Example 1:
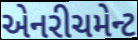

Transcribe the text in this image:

એનરીચમેન્ટ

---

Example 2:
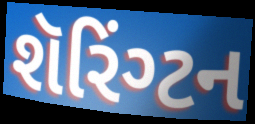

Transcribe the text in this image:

શૅરિંગ્ટન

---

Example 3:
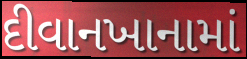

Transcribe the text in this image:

દીવાનખાનામાં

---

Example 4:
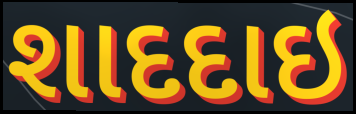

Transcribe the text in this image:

શાદદાઇ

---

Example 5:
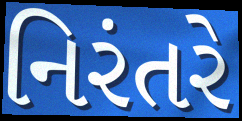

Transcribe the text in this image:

નિરંતરે